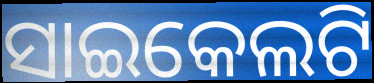
ସାଇକେଲଟି